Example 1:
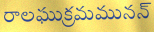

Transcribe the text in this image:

రాలఘుక్రమమునన్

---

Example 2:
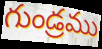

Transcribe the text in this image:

గుండ్రము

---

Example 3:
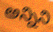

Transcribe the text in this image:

అన్నిని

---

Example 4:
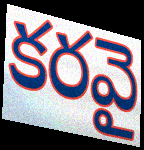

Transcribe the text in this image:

కరవై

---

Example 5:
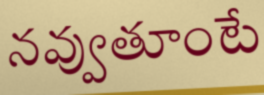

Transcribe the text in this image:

నవ్వుతూంటే